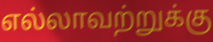
எல்லாவற்றுக்கு